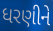
ધરણીને